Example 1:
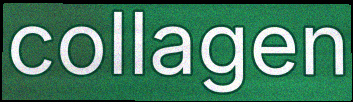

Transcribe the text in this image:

collagen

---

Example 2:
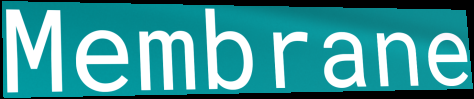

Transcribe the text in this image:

Membrane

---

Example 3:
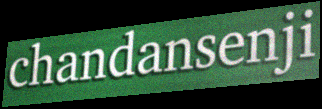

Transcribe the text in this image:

chandansenji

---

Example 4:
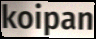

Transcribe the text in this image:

koipan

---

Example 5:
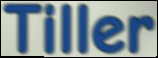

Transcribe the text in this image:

Tiller